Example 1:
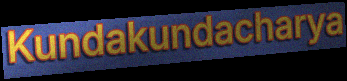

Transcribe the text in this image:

Kundakundacharya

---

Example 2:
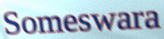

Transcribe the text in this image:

Someswara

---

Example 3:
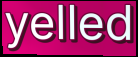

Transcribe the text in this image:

yelled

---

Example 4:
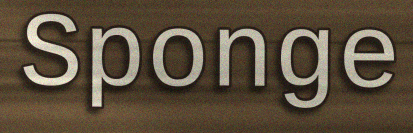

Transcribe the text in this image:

Sponge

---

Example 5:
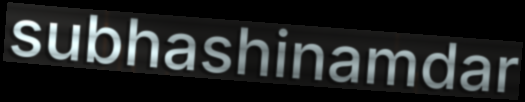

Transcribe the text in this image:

subhashinamdar